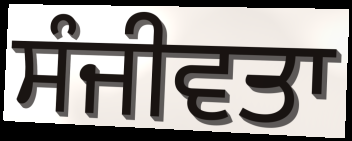
ਸੰਜੀਵਤਾ